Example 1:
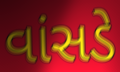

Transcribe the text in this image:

વાંસડે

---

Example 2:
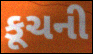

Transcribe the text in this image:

કૂચની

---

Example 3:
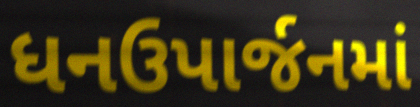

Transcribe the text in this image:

ધનઉપાર્જનમાં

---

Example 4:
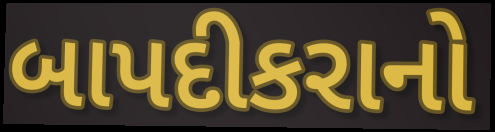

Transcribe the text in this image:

બાપદીકરાનો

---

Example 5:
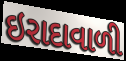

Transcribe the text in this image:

ઇરાદાવાળી